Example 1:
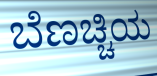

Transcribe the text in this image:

ಬೆಣಚ್ಚಿಯ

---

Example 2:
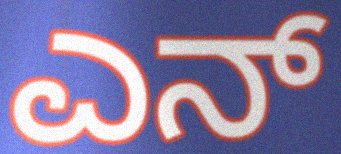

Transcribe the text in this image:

ಎನ್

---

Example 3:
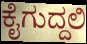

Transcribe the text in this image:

ಕೈಗುದ್ದಲಿ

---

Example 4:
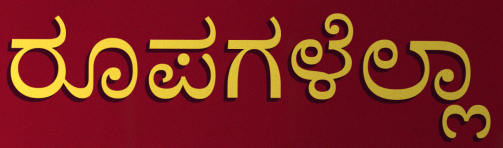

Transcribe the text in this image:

ರೂಪಗಳೆಲ್ಲಾ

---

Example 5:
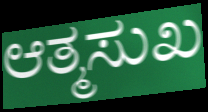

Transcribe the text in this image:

ಆತ್ಮಸುಖ